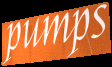
pumps